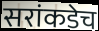
सरांकडेच